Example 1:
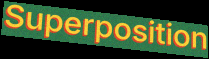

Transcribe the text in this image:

Superposition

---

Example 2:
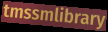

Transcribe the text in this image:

tmssmlibrary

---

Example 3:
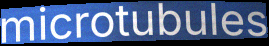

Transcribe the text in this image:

microtubules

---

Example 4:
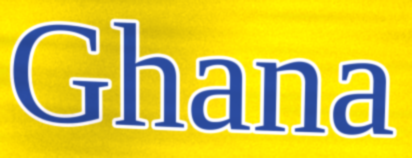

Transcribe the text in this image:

Ghana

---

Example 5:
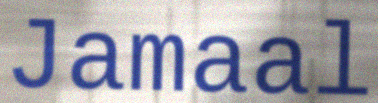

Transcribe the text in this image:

Jamaal